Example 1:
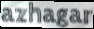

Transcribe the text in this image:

azhagar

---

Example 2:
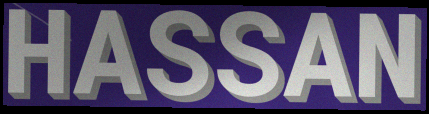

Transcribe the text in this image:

HASSAN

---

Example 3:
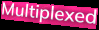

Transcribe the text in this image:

Multiplexed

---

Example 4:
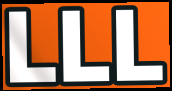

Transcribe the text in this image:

LLL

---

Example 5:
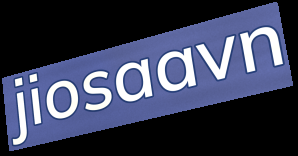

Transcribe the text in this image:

jiosaavn